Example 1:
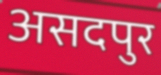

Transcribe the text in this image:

असदपुर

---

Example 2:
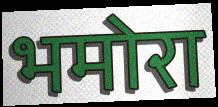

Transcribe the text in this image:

भमोरा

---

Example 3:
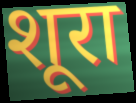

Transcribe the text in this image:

शूरा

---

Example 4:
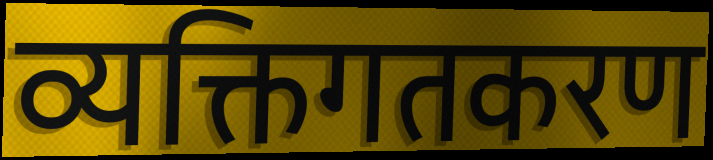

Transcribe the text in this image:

व्यक्तिगतकरण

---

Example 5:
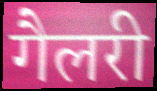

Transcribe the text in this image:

गैलरी